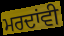
ਮਰਦਾਂਵੀ